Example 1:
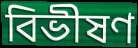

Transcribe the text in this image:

বিভীষণ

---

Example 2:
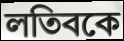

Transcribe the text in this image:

লতিবকে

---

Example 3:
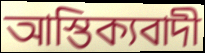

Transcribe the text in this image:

আস্তিক্যবাদী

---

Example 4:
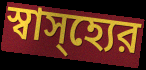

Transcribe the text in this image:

স্বাস্হ্যের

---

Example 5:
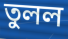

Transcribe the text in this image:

তুলল